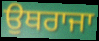
ਉਥਰਾਜਾ